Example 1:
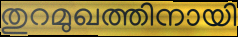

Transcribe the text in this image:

തുറമുഖത്തിനായി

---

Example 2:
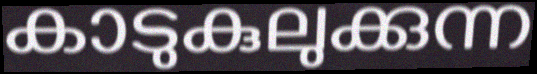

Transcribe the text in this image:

കാടുകുലുക്കുന്ന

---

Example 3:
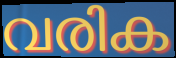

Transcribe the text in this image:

വരിക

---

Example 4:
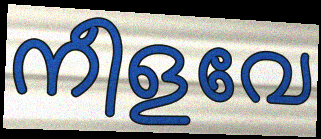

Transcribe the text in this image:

നീളവേ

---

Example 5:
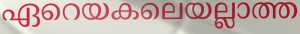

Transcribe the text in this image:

ഏറെയകലെയല്ലാത്ത